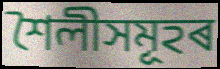
শৈলীসমূহৰ